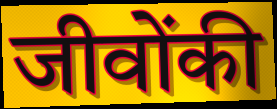
जीवोंकी